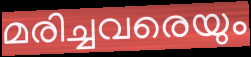
മരിച്ചവരെയും